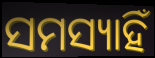
ସମସ୍ୟାହିଁ